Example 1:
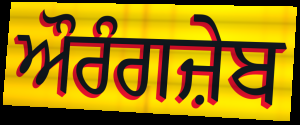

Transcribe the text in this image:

ਔਰੰਗਜ਼ੇਬ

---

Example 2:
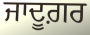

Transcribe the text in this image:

ਜਾਦੂਗ਼ਰ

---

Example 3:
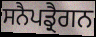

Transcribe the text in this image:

ਸਨੈਪਡ੍ਰੈਗਨ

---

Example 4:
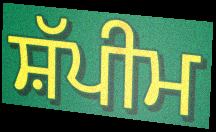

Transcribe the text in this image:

ਸ਼ੱਪੀਮ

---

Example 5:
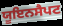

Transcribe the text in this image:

ਯੂਇਨਸੈਪਟ